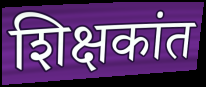
शिक्षकांत